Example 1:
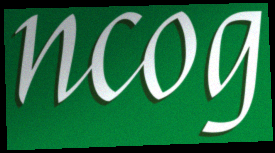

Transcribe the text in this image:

ncog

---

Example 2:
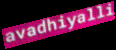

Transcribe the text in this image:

avadhiyalli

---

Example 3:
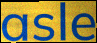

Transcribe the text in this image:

asle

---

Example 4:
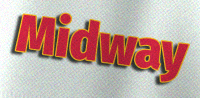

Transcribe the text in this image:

Midway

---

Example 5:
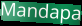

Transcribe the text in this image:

Mandapa